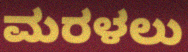
ಮರಳಲು